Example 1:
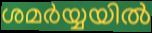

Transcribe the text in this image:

ശമർയ്യയിൽ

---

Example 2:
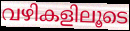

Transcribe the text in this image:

വഴികളിലൂടെ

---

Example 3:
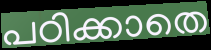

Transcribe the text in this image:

പഠിക്കാതെ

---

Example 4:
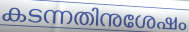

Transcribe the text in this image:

കടന്നതിനുശേഷം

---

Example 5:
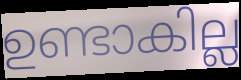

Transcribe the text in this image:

ഉണ്ടാകില്ല